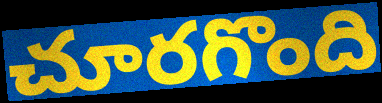
చూరగొంది